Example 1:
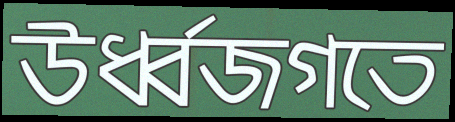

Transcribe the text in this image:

উর্ধ্বজগতে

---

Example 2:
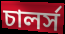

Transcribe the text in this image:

চালর্স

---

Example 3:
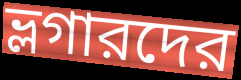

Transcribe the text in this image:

ভ্লগারদের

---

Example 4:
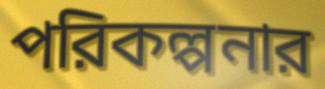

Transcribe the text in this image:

পরিকল্পনার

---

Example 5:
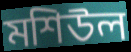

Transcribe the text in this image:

মশিউল